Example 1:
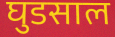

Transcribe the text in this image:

घुडसाल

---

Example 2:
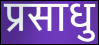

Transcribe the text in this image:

प्रसाधु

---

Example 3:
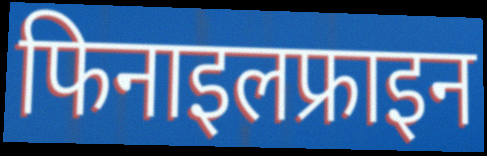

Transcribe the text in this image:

फिनाइलफ्राइन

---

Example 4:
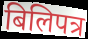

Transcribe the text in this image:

बिलिपत्र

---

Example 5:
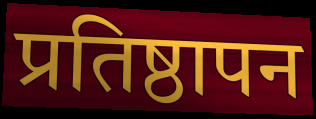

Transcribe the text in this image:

प्रतिष्ठापन